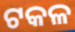
ଟକଳ